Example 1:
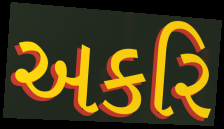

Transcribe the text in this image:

અકરિ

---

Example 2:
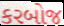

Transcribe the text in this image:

કરબોજ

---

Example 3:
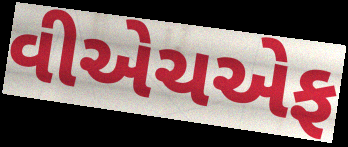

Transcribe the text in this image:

વીએચએફ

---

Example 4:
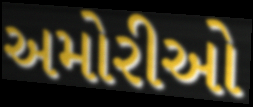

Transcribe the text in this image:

અમોરીઓ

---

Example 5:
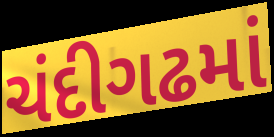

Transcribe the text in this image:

ચંદીગઢમાં